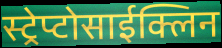
स्ट्रेप्टोसाईक्लिन